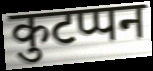
कुटप्पन